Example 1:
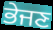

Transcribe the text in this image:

ਭੇਜਣ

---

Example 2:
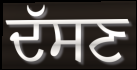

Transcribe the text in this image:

ਦੱਸਣ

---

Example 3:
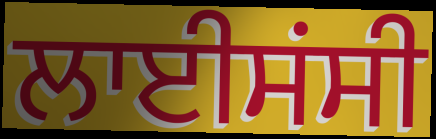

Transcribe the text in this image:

ਲਾਈਸਂਸੀ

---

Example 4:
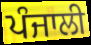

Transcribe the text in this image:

ਪੰਜਾਲੀ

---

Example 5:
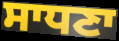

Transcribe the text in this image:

ਸਾਧਣਾ